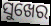
ସୁଖେର